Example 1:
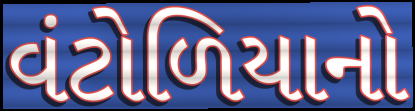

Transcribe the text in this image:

વંટોળિયાનો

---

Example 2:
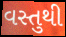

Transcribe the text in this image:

વસ્તુથી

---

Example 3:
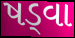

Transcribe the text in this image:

ષડ્વા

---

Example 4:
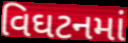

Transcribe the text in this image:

વિઘટનમાં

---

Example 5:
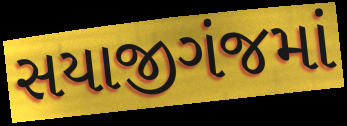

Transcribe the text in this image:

સયાજીગંજમાં